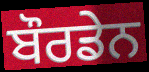
ਬੌਰਡੇਨ